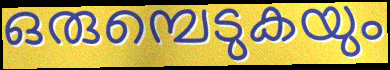
ഒരുമ്പെടുകയും